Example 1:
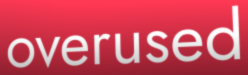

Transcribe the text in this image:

overused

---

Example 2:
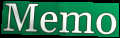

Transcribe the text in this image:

Memo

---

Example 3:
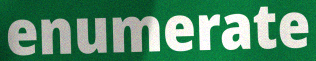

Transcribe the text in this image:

enumerate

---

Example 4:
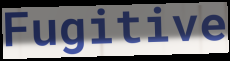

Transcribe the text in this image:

Fugitive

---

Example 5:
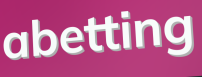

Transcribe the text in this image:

abetting